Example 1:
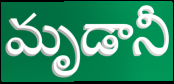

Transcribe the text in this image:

మృడానీ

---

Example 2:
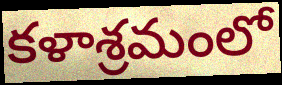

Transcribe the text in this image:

కళాశ్రమంలో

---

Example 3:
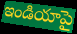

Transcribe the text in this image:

ఇండియాపై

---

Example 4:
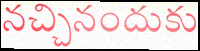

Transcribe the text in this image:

నచ్చినందుకు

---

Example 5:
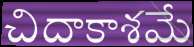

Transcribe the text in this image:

చిదాకాశమే